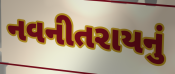
નવનીતરાયનું